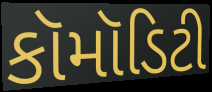
કૉમૉડિટી